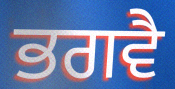
ਭਗਵੈ